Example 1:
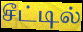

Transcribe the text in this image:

சீட்டில்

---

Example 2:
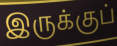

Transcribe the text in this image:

இருக்குப்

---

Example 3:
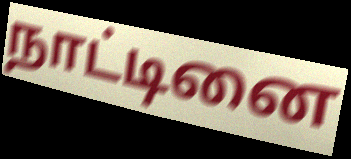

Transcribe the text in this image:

நாட்டினை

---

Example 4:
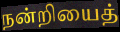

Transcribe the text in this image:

நன்றியைத்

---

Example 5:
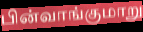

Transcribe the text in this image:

பின்வாங்குமாறு